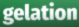
gelation